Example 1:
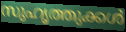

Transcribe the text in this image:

സുഹൃത്തുക്കൾ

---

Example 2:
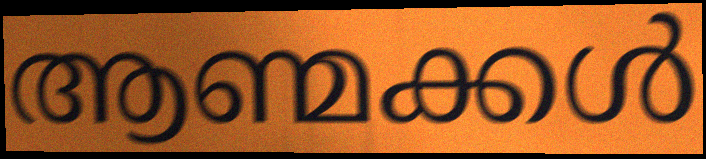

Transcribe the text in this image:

ആണ്മക്കൾ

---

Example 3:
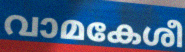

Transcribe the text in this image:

വാമകേശീ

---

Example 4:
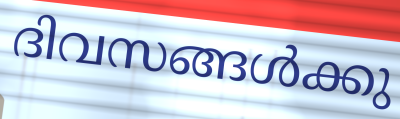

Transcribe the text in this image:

ദിവസങ്ങൾക്കു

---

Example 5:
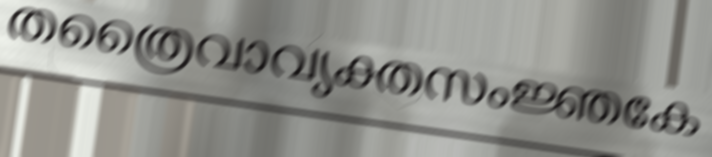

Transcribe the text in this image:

തത്രൈവാവ്യക്തസംജ്ഞകേ